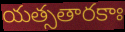
యత్సతారకాః